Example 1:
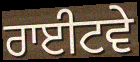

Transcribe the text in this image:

ਰਾਈਟਵੇ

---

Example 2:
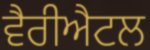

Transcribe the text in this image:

ਵੈਰੀਐਟਲ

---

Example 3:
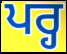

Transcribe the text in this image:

ਪਰ੍ਹ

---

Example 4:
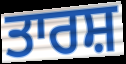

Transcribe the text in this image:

ਤਾਰਸ਼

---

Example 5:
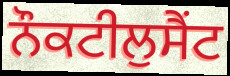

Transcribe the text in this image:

ਨੌਕਟੀਲੁਸੈਂਟ